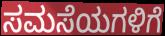
ಸಮಸೆಯಗಳಿಗೆ